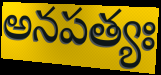
అనపత్యః